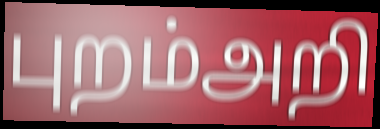
புறம்அறி